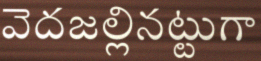
వెదజల్లినట్టుగా